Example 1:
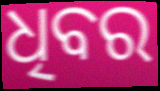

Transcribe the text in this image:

ଧିବର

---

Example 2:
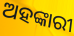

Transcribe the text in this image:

ଅହଙ୍କାରୀ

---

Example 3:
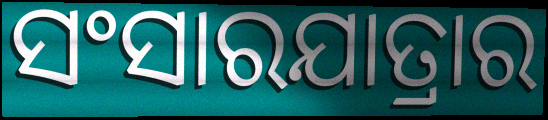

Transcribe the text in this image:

ସଂସାରଯାତ୍ରାର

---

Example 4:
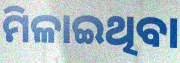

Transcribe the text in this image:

ମିଳାଇଥିବା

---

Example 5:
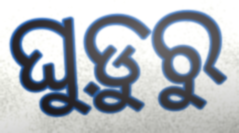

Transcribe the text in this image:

ଘୁଡ଼ୁରୁ